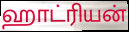
ஹாட்ரியன்